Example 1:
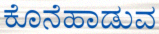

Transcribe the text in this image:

ಕೊನೆಹಾಡುವ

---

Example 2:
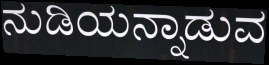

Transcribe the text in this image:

ನುಡಿಯನ್ನಾಡುವ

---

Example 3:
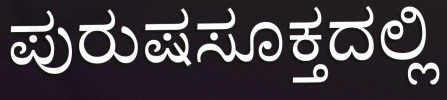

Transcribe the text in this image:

ಪುರುಷಸೂಕ್ತದಲ್ಲಿ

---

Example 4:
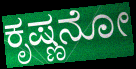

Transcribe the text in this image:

ಕೃಷ್ಣನೋ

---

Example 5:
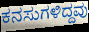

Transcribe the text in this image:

ಕನಸುಗಳಿದ್ದವು